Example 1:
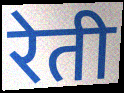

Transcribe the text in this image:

रेती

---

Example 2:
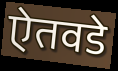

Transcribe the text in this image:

ऐतवडे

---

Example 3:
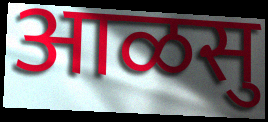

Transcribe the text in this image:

आळसु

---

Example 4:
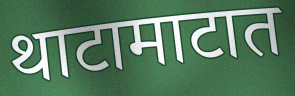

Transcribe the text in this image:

थाटामाटात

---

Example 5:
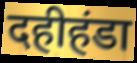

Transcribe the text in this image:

दहीहंडा